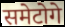
समेटोगे